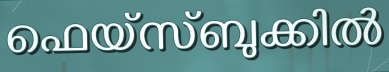
ഫെയ്സ്ബുക്കിൽ